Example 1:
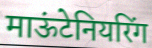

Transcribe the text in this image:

माऊंटेनियरिंग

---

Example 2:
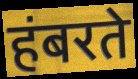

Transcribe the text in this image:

हंबरते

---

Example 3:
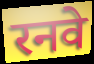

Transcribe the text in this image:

रनवे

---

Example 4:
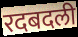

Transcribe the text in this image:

रदबदली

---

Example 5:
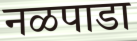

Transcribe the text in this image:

नळपाडा